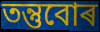
তন্তুবোৰ